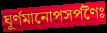
ঘূর্ণমানোপসর্পণৈঃ